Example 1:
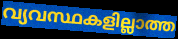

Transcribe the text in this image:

വ്യവസ്ഥകളില്ലാത്ത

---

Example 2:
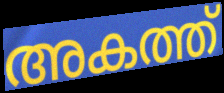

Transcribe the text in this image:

അകത്ത്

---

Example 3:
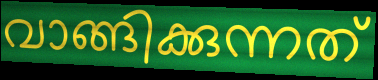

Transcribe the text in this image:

വാങ്ങിക്കുന്നത്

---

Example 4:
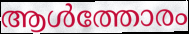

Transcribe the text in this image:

ആൾത്തോരം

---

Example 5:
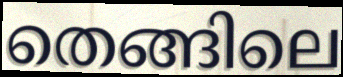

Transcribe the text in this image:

തെങ്ങിലെ